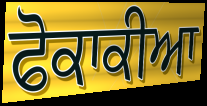
ਫੋਕਾਕੀਆ